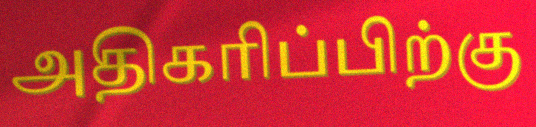
அதிகரிப்பிற்கு